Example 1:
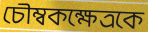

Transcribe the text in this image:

চৌম্বকক্ষেত্রকে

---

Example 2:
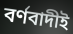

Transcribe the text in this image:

বর্ণবাদীই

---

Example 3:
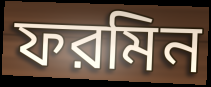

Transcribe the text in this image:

ফরমিন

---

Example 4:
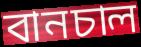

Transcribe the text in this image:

বানচাল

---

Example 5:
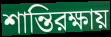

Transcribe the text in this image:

শান্তিরক্ষায়